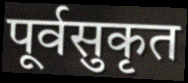
पूर्वसुकृत